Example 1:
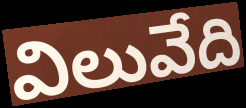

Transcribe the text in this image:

విలువేది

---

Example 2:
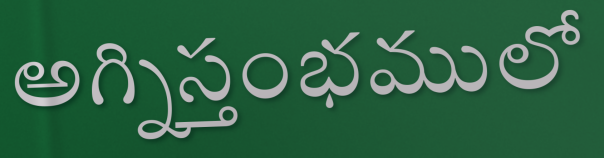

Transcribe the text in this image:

అగ్నిస్తంభములో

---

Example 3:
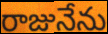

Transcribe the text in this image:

రాజునేను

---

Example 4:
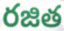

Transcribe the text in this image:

రజిత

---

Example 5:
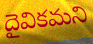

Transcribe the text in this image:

దైవికమని